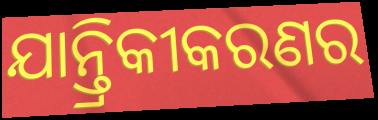
ଯାନ୍ତ୍ରିକୀକରଣର